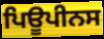
ਪਿਊਪੀਨਸ